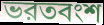
ভরতবংশ